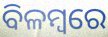
ବିଳମ୍ୱରେ